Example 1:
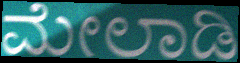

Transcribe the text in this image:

ಮೇಲಾಡಿ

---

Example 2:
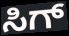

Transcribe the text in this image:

ಸಿಗ್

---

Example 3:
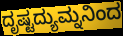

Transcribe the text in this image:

ದೃಷ್ಟದ್ಯುಮ್ನನಿಂದ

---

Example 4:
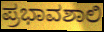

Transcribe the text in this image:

ಪ್ರಭಾವಶಾಲಿ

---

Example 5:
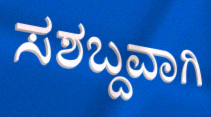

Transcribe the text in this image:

ಸಶಬ್ದವಾಗಿ